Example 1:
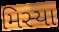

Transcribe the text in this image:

મિસ્યા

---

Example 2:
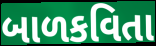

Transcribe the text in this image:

બાળકવિતા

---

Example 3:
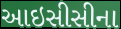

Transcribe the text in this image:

આઇસીસીના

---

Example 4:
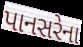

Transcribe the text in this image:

પાનસરેના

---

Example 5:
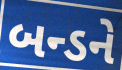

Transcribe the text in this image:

બન્ડને